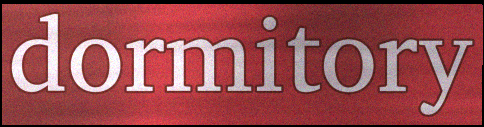
dormitory